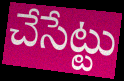
చేసేట్టు